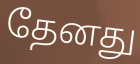
தேனது